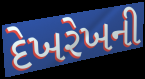
દેખરેખની